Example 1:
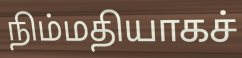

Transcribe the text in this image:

நிம்மதியாகச்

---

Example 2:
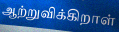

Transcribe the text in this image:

ஆற்றுவிக்கிறாள்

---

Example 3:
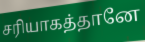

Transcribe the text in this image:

சரியாகத்தானே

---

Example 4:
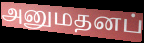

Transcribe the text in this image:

அனுமதனப்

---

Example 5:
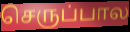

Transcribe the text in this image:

செருப்பால